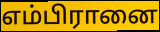
எம்பிரானை